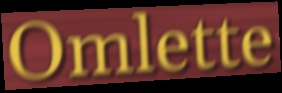
Omlette